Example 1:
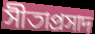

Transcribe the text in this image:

সীতাপ্রসাদ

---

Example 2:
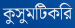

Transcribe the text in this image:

কুসুমটিকরি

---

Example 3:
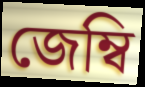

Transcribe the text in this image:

জেম্বি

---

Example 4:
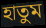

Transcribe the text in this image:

হাতুম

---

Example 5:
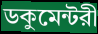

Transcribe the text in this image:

ডকুমেন্টরী